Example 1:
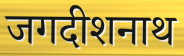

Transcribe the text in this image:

जगदीशनाथ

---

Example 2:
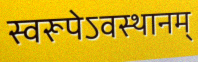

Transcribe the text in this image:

स्वरूपेऽवस्थानम्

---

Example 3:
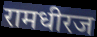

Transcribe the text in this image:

रामधीरज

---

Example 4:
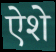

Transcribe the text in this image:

ऐशे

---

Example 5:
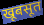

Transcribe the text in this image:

खूबसूत